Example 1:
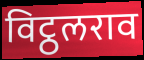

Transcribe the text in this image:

विट्ठलराव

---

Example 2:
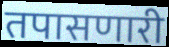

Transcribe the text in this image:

तपासणारी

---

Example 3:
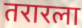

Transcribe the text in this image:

तरारला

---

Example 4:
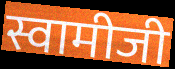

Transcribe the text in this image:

स्वामीजी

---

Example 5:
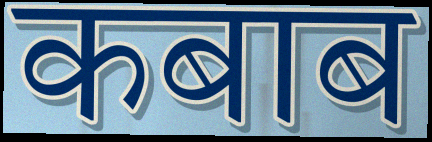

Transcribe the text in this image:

कबाब